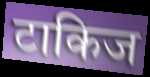
टाकिज